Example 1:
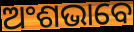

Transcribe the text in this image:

ଅଂଶଭାବେ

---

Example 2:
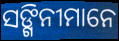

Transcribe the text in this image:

ସଙ୍ଗିନୀମାନେ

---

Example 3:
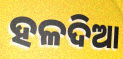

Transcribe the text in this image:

ହଳଦିଆ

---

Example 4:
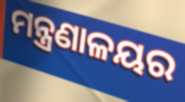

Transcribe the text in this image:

ମନ୍ତ୍ରଣାଳୟର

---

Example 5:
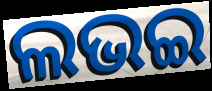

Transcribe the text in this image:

ଲଭଇ